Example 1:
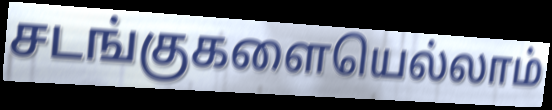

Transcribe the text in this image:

சடங்குகளையெல்லாம்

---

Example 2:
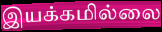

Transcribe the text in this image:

இயக்கமில்லை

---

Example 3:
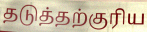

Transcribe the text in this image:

தடுத்தற்குரிய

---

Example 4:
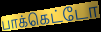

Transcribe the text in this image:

பாக்கெட்டோ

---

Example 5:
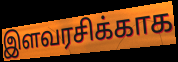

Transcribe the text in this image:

இளவரசிக்காக